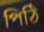
পিঠি